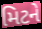
મિટને